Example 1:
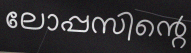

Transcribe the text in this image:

ലോപ്പസിന്റെ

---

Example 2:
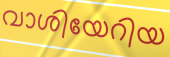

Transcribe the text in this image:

വാശിയേറിയ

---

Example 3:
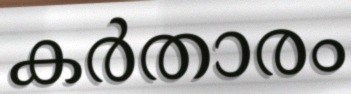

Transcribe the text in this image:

കർതാരം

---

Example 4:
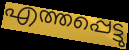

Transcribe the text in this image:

എത്തപ്പെട്ടു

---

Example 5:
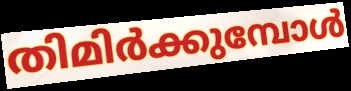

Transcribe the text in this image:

തിമിർക്കുമ്പോൾ